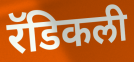
रॅडिकली